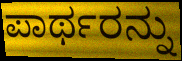
ಪಾರ್ಥರನ್ನು